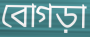
বোগড়া